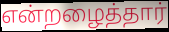
என்றழைத்தார்